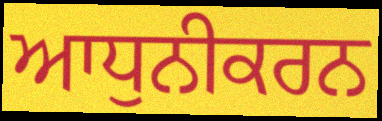
ਆਧੁਨੀਕਰਨ